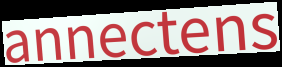
annectens